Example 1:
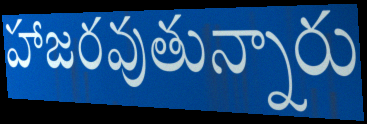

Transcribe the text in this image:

హాజరవుతున్నారు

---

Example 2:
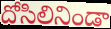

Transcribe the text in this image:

దోసిలినిండా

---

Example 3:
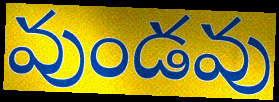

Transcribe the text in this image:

వుండవు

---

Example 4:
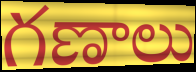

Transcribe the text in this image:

గణాలు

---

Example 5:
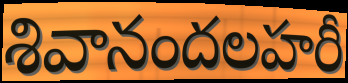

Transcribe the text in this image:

శివానందలహరీ